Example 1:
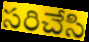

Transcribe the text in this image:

సరిచేసి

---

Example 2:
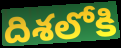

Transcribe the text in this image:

దిశలోకి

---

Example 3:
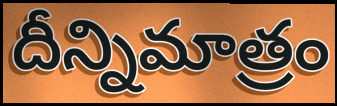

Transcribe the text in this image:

దీన్నిమాత్రం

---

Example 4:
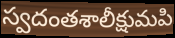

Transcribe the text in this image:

స్వదంతశాలీక్షుమపి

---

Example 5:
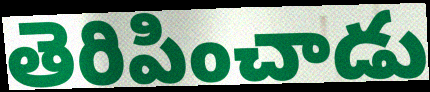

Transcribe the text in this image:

తెరిపించాడు